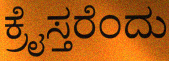
ಕ್ರೈಸ್ತರೆಂದು